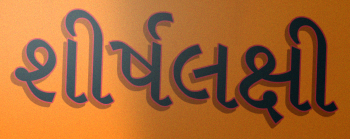
શીર્ષલક્ષી